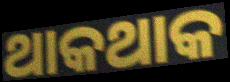
ଥାକଥାକ